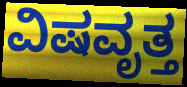
ವಿಷವೃತ್ತ